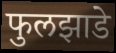
फुलझाडे